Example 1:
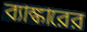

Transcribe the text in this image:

ব্যাঙ্কারের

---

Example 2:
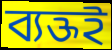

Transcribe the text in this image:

ব্যক্তই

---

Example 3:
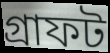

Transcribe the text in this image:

গ্রাফট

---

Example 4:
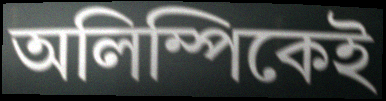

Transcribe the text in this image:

অলিম্পিকেই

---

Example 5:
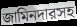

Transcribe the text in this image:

জামিনদারসহ